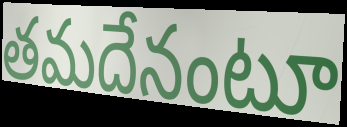
తమదేనంటూ